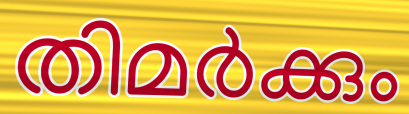
തിമർക്കും